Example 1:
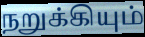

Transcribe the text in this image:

நறுக்கியும்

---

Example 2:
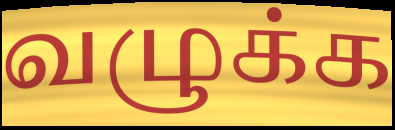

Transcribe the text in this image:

வழுக்க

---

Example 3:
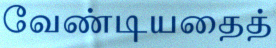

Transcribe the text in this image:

வேண்டியதைத்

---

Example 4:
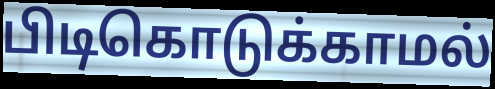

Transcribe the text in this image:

பிடிகொடுக்காமல்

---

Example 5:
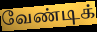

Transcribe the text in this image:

வேண்டிக்